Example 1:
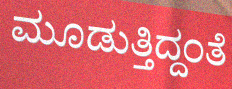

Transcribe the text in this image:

ಮೂಡುತ್ತಿದ್ದಂತೆ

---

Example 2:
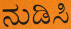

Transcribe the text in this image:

ನುಡಿಸಿ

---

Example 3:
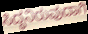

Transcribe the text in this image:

ಸಿದ್ಧನಿರುವುದಾಗಿ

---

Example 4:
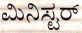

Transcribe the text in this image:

ಮಿನಿಸ್ಟರ್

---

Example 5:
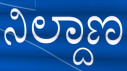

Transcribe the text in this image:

ನಿಲ್ದಾಣ